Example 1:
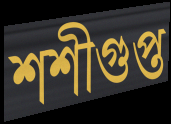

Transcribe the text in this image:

শশীগুপ্ত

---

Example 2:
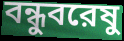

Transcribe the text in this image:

বন্ধুবরেষু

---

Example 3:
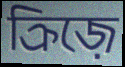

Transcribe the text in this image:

ক্রিজ়ে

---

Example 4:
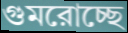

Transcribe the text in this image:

গুমরোচ্ছে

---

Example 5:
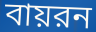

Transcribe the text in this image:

বায়রন